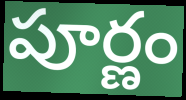
పూర్ణం